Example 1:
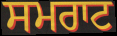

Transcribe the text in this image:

ਸਮਰਾਟ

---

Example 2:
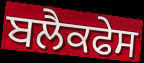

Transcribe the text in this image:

ਬਲੈਕਫੇਸ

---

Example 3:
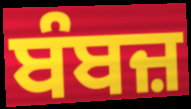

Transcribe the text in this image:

ਬੰਬਜ਼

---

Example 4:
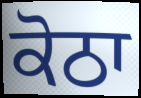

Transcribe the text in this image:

ਕੋਠਾ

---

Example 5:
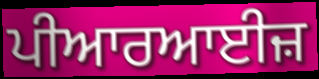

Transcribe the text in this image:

ਪੀਆਰਆਈਜ਼